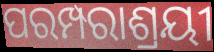
ପରମ୍ପରାଶ୍ରୟୀ